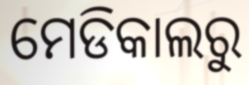
ମେଡିକାଲରୁ